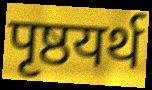
पृष्ठयर्थ